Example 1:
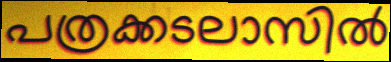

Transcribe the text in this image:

പത്രക്കടലാസിൽ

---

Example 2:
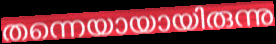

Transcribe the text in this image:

തന്നെയായായിരുന്നു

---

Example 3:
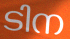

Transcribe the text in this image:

ടിന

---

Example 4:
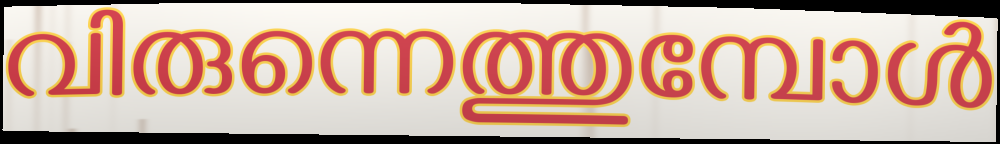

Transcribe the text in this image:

വിരുന്നെത്തുമ്പോൾ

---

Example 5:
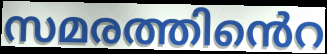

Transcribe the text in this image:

സമരത്തിൻെറ